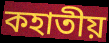
কহাতীয়